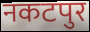
नकटपुर